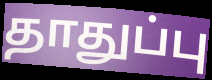
தாதுப்பு